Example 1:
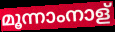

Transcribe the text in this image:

മൂന്നാംനാള്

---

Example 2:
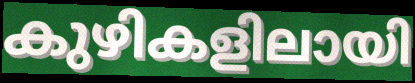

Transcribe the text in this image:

കുഴികളിലായി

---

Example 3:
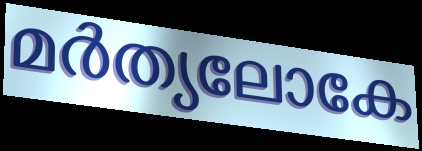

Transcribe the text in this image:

മർത്യലോകേ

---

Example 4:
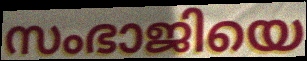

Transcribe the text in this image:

സംഭാജിയെ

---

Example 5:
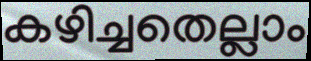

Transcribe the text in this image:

കഴിച്ചതെല്ലാം